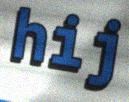
hij